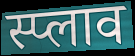
स्प्लाव